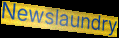
Newslaundry